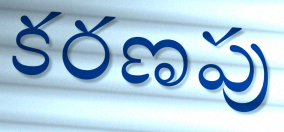
కరణపు